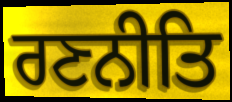
ਰਣਨੀਤਿ